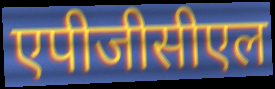
एपीजीसीएल